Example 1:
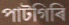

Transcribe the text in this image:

পাটগিৰি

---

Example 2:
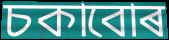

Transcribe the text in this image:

চকাবোৰ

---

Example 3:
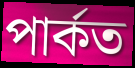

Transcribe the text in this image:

পাৰ্কত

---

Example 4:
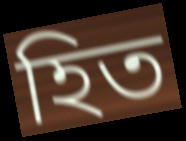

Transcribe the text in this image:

হিত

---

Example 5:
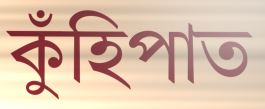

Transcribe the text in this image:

কুঁহিপাত